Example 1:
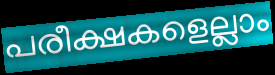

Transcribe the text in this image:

പരീക്ഷകളെല്ലാം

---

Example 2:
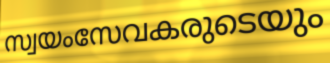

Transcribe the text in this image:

സ്വയംസേവകരുടെയും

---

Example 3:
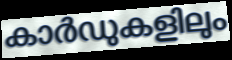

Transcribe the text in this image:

കാർഡുകളിലും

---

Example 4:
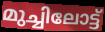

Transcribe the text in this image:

മുച്ചിലോട്ട്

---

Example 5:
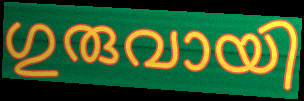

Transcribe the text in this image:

ഗുരുവായി